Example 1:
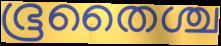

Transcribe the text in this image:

ഭൂതൈശ്ച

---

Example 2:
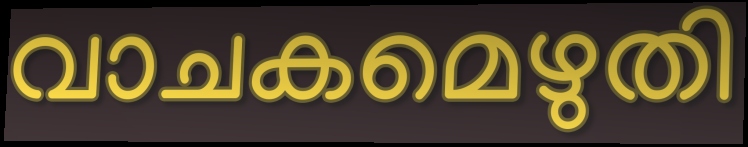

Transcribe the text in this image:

വാചകമെഴുതി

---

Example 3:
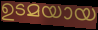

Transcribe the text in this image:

ഉടമയായ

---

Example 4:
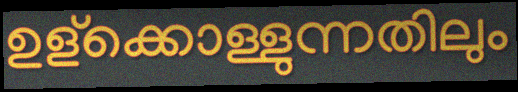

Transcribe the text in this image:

ഉള്ക്കൊള്ളുന്നതിലും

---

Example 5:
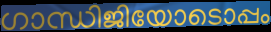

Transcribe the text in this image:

ഗാന്ധിജിയോടൊപ്പം